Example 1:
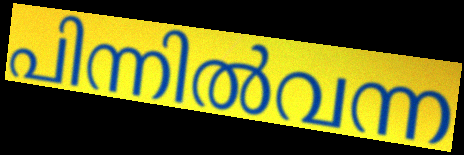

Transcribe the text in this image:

പിന്നിൽവന്ന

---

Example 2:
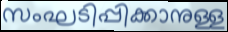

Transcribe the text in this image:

സംഘടിപ്പിക്കാനുള്ള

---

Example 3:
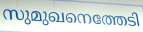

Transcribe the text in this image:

സുമുഖനെത്തേടി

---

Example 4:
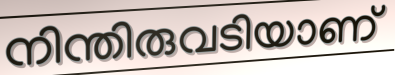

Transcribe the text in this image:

നിന്തിരുവടിയാണ്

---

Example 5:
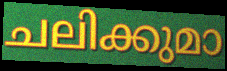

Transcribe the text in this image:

ചലിക്കുമാ